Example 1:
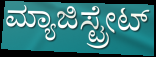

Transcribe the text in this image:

ಮ್ಯಾಜಿಸ್ಟ್ರೇಟ್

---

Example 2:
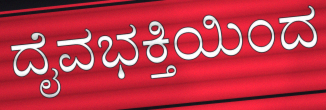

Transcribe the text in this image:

ದೈವಭಕ್ತಿಯಿಂದ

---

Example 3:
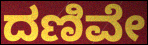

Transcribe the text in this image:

ದಣಿವೇ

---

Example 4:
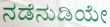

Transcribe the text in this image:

ನಡೆನುಡಿಯೇ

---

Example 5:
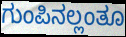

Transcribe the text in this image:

ಗುಂಪಿನಲ್ಲಂತೂ